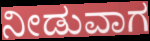
ನೀಡುವಾಗ